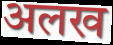
अलख